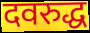
दवरुद्ध